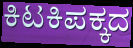
ಕಿಟಕಿಪಕ್ಕದ